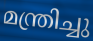
മന്ത്രിച്ചു